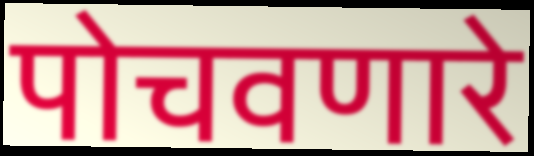
पोचवणारे